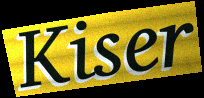
Kiser